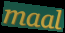
maal